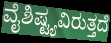
ವೈಶಿಷ್ಟ್ಯವಿರುತ್ತದೆ